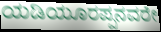
ಯಡಿಯೂರಪ್ಪನವರೇ